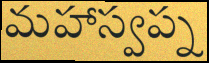
మహాస్వప్న